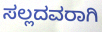
ಸಲ್ಲದವರಾಗಿ